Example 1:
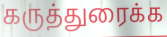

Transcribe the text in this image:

கருத்துரைக்க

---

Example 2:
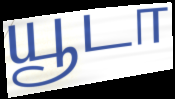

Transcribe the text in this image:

யூடா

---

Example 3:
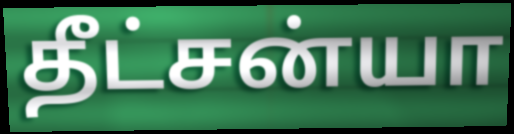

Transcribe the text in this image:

தீட்சன்யா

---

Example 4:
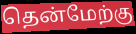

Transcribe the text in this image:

தென்மேற்கு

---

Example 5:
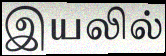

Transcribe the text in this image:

இயலில்